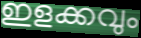
ഇളക്കവും